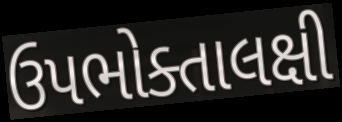
ઉપભોક્તાલક્ષી